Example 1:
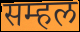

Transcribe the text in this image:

सम्हल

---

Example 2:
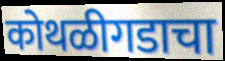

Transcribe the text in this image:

कोथळीगडाचा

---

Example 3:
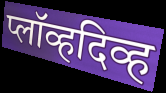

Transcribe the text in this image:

प्लॉव्हदिव्ह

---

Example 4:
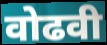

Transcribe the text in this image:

वोढवी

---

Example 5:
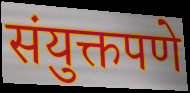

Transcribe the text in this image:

संयुक्तपणे